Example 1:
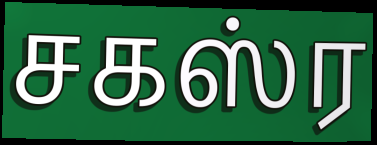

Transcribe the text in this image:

சகஸ்ர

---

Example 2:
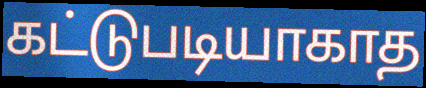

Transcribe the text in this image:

கட்டுபடியாகாத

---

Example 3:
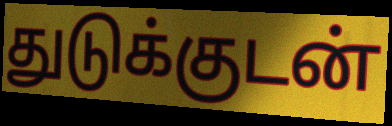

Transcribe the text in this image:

துடுக்குடன்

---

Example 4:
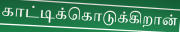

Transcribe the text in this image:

காட்டிக்கொடுக்கிறான்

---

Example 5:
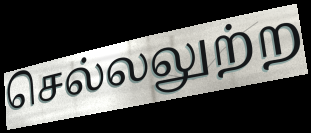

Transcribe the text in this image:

செல்லலுற்ற